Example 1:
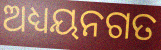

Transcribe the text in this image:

ଅଧ୍ୟୟନଗତ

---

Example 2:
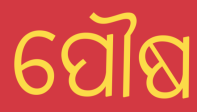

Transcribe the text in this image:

ପୌଷ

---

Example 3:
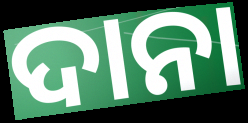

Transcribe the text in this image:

ଦାନା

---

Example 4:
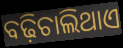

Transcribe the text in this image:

ବଢ଼ିଚାଲିଥାଏ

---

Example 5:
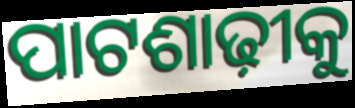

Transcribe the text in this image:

ପାଟଶାଢ଼ୀକୁ